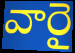
వారై